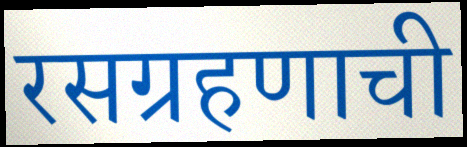
रसग्रहणाची